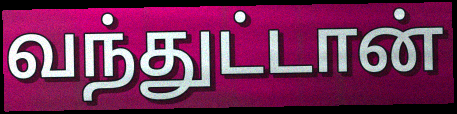
வந்துட்டான்